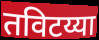
तविटय्या